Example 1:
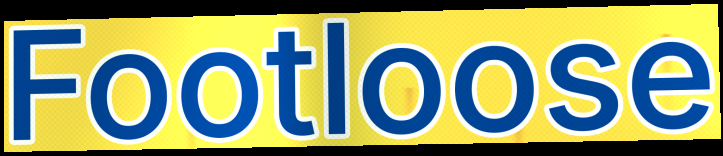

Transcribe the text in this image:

Footloose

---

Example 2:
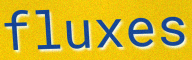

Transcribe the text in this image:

fluxes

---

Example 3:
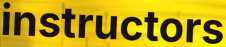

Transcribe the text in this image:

instructors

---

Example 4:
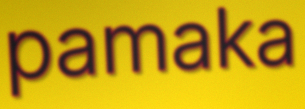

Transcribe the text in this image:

pamaka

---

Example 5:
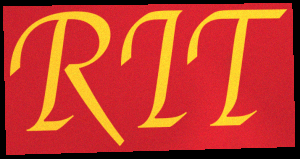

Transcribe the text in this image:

RIT